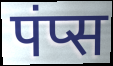
पंप्स